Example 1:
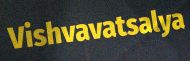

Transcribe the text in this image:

Vishvavatsalya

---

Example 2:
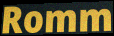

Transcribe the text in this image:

Romm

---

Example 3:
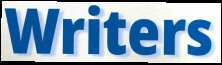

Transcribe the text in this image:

Writers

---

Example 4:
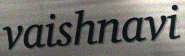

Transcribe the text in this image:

vaishnavi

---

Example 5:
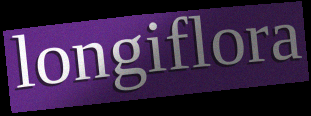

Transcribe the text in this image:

longiflora